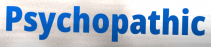
Psychopathic